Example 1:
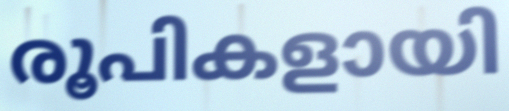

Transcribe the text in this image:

രൂപികളായി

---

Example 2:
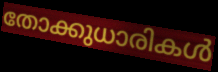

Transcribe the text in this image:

തോക്കുധാരികൾ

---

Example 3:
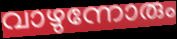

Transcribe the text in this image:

വാഴുന്നോരും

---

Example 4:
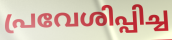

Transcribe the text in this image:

പ്രവേശിപ്പിച്ച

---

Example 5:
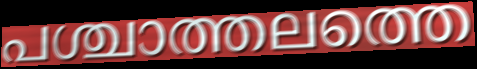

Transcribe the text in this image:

പശ്ചാത്തലത്തെ